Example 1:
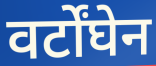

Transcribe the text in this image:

वर्टोंघेन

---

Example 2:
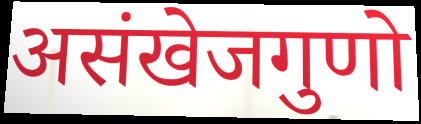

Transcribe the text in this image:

असंखेजगुणो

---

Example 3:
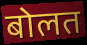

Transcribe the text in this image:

बोलत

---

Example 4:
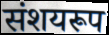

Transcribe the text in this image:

संशयरूप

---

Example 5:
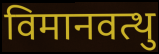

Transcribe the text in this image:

विमानवत्थु